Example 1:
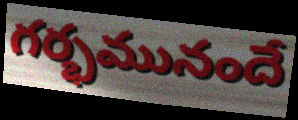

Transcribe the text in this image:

గర్భమునందే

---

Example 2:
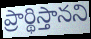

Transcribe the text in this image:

ప్రార్థిస్తానని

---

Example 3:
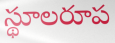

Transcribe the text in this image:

స్థూలరూప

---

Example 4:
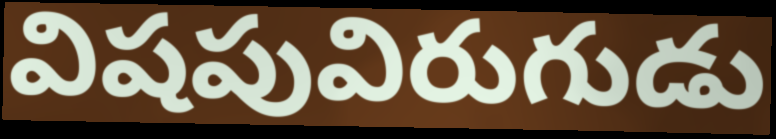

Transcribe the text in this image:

విషపువిరుగుడు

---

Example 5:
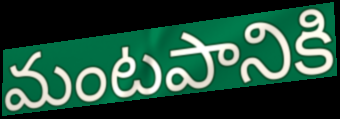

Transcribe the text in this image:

మంటపానికి